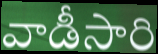
వాడీసారి